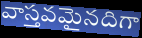
వాస్తవమైనదిగా